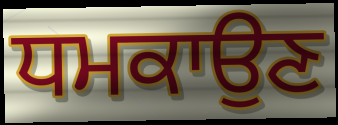
ਧਮਕਾਉਣ